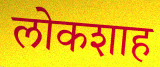
लोकशाह